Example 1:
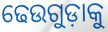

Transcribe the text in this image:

ଢେଉଗୁଡ଼ାକୁ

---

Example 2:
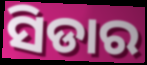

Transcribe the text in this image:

ସିଡାର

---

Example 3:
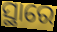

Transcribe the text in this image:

ସ୍ଥାରେ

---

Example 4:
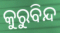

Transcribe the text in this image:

କୁରୁବିନ୍ଦ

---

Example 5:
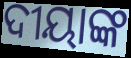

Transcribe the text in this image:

ଦୀୟାଙ୍କ